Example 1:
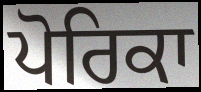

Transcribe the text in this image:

ਪੋਰਿਕਾ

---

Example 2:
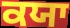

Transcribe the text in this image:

ਕਯਾ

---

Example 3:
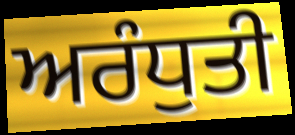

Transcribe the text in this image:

ਅਰੰਧੁਤੀ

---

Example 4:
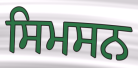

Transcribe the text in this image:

ਸਿਮਸਨ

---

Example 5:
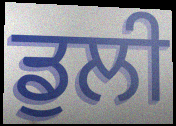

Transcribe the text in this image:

ਡੁਲੀ